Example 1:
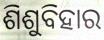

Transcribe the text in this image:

ଶିଶୁବିହାର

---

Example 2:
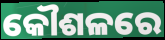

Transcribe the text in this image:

କୌଶଳରେ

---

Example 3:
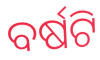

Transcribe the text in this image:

ବର୍ଷଟି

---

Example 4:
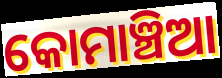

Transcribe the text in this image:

କୋମାଞ୍ଚିଆ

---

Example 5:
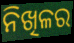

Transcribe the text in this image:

ନିଖିଳର